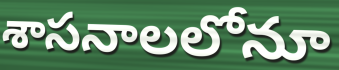
శాసనాలలోనూ